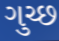
ગુચ્છ